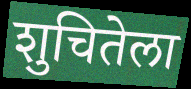
शुचितेला